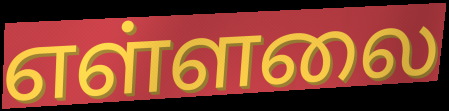
எள்ளலை